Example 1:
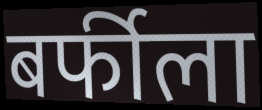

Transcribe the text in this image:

बर्फीला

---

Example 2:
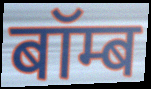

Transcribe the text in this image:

बॉम्ब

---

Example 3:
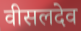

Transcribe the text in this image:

वीसलदेव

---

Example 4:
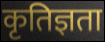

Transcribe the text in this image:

कृतिज्ञता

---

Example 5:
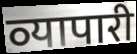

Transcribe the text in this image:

व्‍यापारी